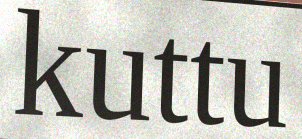
kuttu